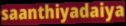
saanthiyadaiya